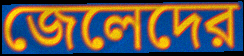
জেলেদের